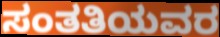
ಸಂತತಿಯವರ